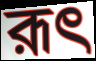
রূৎ